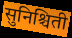
सुनिश्चिती